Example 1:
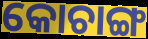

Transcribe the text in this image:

କୋଚାଙ୍ଗ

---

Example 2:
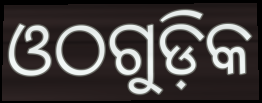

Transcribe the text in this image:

ଓଠଗୁଡ଼ିକ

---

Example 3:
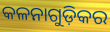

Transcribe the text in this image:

କଳନାଗୁଡ଼ିକର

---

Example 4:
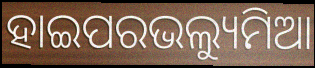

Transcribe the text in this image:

ହାଇପରଭଲ୍ୟୁମିଆ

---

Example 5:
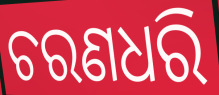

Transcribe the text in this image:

ଚରଣଧରି